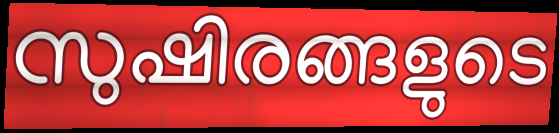
സുഷിരങ്ങളുടെ